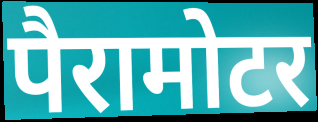
पैरामोटर